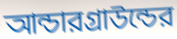
আন্ডারগ্রাউন্ডের